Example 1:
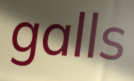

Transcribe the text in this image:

galls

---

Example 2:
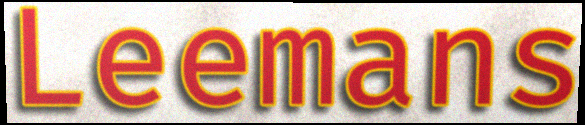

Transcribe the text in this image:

Leemans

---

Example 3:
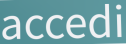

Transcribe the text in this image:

accedi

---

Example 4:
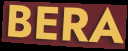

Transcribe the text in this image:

BERA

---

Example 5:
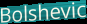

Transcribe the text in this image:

Bolshevic